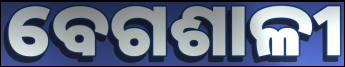
ବେଗଶାଳୀ